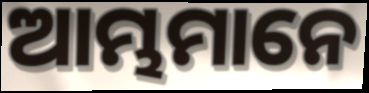
ଆମ୍ଭମାନେ